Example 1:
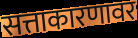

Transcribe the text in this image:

सत्ताकारणावर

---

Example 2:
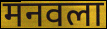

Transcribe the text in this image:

मनवला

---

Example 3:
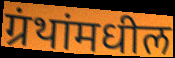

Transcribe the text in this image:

ग्रंथांमधील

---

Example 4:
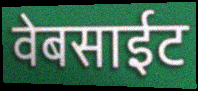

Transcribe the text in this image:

वेबसाईट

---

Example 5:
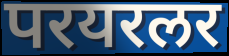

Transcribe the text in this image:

परयरलर